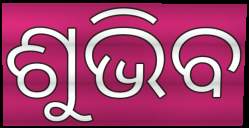
ଶୁଭିବ